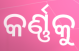
କର୍ଣ୍ଣକୁ